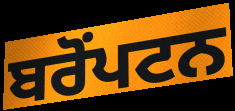
ਬਰੋਂਪਟਨ